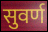
सुवर्ण